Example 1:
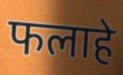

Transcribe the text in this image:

फलाहे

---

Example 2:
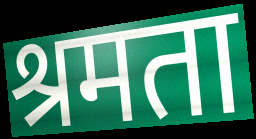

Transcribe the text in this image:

श्रमता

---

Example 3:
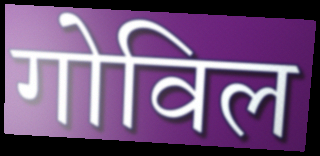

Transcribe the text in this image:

गोविल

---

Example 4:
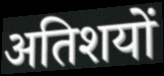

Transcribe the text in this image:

अतिशयों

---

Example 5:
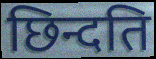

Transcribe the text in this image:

छिन्दति